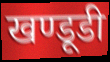
खण्डूडी